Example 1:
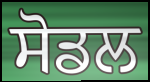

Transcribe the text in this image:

ਸੋਡਲ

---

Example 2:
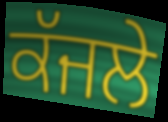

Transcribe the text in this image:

ਕੱਜਲੇ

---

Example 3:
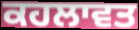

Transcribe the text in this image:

ਕਹਲਾਵਤ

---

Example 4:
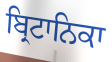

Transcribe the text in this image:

ਬ੍ਰਿਟਾਨਿਕਾ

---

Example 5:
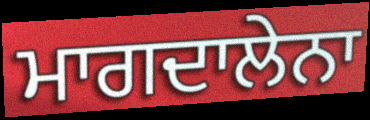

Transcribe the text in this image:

ਮਾਗਦਾਲੇਨਾ